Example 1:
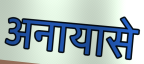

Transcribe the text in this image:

अनायासे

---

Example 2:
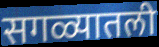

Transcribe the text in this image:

सगळ्यातली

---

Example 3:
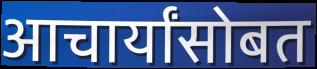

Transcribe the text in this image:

आचार्यांसोबत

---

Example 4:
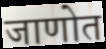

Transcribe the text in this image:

जाणोत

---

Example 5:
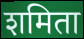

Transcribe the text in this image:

शमिता